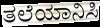
ತಲೆಯಾನಿಸಿ